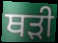
ਥੜੀ